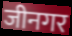
जीनगर